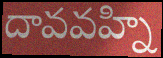
దావవహ్ని